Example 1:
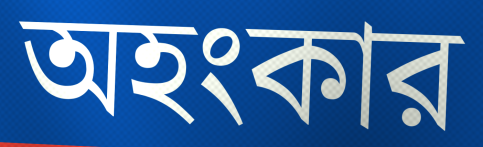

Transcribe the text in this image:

অহংকার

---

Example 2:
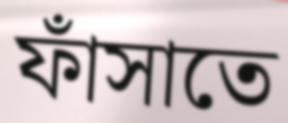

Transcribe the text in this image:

ফাঁসাতে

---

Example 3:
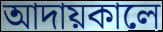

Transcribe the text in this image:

আদায়কালে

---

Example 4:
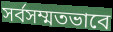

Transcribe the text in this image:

সর্বসম্মতভাবে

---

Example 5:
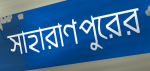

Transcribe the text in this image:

সাহারাণপুরের